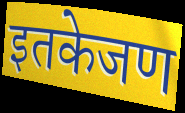
इतकेजण